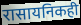
रासायनिकही